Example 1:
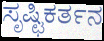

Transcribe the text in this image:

ಸೃಷ್ಟಿಕರ್ತನ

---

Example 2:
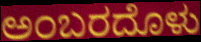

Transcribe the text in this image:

ಅಂಬರದೊಳು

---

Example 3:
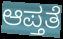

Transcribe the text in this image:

ಆಪ್ತತೆ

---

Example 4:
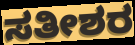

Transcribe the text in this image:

ಸತೀಶರ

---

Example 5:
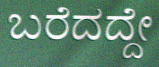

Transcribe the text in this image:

ಬರೆದದ್ದೇ